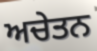
ਅਚੇਤਨ